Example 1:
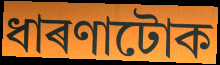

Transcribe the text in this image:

ধাৰণাটোক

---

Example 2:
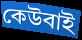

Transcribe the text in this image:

কেউবাই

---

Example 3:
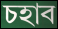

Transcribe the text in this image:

চহাব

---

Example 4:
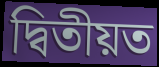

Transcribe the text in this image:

দ্বিতীয়ত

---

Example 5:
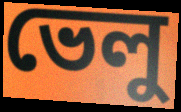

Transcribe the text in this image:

ভেলু